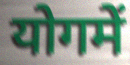
योगमें